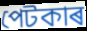
পেটকাৰ